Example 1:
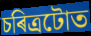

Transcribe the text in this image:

চৰিত্ৰটোত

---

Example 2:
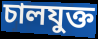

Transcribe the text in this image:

চালযুক্ত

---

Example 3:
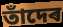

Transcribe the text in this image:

তাঁদেৰ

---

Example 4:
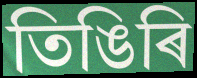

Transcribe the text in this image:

তিঙিৰি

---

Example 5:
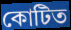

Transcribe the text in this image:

কোটিত